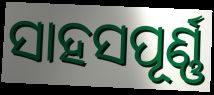
ସାହସପୂର୍ଣ୍ଣ